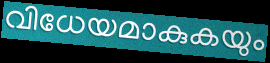
വിധേയമാകുകയും